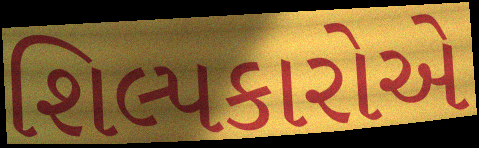
શિલ્પકારોએ